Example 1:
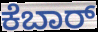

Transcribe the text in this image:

ಕೆಬಾರ್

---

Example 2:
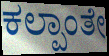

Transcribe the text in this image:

ಕಲ್ಪಾಂತೇ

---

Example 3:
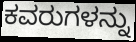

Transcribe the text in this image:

ಕವರುಗಳನ್ನು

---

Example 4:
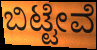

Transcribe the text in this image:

ಬಿಟ್ಟೇವೆ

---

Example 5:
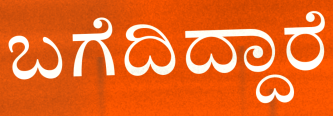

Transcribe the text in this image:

ಬಗೆದಿದ್ದಾರೆ